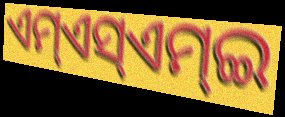
ଏମ୍ଏସ୍ଏମ୍ଇ